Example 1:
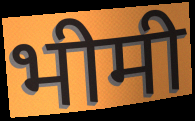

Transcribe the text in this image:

भीमी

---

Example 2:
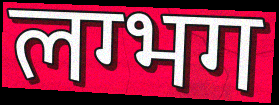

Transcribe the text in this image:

लग्भग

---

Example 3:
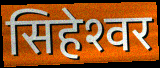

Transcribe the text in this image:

सिहेश्वर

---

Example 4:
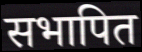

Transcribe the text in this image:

सभापित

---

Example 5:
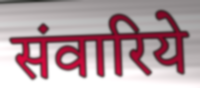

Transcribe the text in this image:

संवारिये